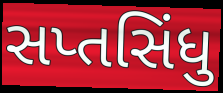
સપ્તસિંધુ